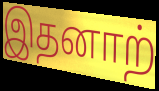
இதனாற்